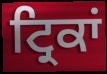
ਟ੍ਰਿਕਾਂ